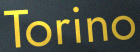
Torino